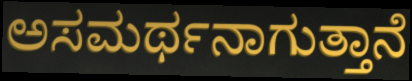
ಅಸಮರ್ಥನಾಗುತ್ತಾನೆ